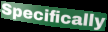
Specifically